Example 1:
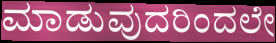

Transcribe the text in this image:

ಮಾಡುವುದರಿಂದಲೇ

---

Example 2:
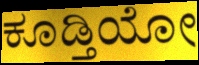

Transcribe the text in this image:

ಕೂಡ್ತಿಯೋ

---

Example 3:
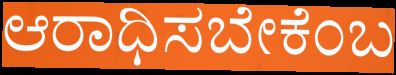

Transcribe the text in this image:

ಆರಾಧಿಸಬೇಕೆಂಬ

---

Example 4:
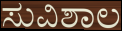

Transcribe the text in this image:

ಸುವಿಶಾಲ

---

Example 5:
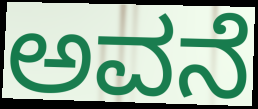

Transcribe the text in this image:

ಅವನೆ